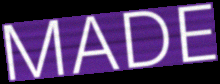
MADE